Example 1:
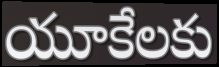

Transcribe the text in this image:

యూకేలకు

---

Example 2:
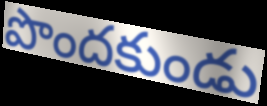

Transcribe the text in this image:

పొందకుండు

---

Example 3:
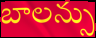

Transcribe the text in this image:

బాలన్సు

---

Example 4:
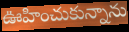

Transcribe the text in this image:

ఊహించుకున్నాను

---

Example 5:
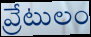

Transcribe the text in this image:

వ్రేటులం